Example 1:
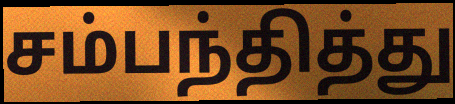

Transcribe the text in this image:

சம்பந்தித்து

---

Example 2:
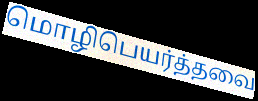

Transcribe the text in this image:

மொழிபெயர்த்தவை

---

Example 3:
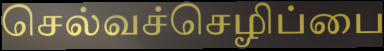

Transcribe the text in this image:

செல்வச்செழிப்பை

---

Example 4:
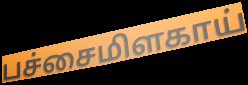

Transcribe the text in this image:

பச்சைமிளகாய்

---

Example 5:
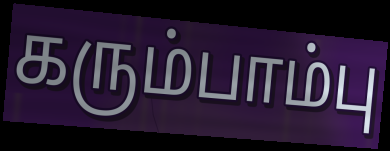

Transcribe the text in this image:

கரும்பாம்பு